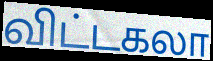
விட்டகலா